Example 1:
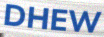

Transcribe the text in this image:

DHEW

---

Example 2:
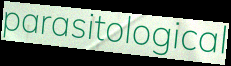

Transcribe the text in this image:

parasitological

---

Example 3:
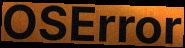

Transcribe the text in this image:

OSError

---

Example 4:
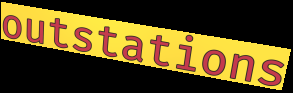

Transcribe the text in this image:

outstations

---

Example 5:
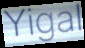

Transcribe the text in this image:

Yigal